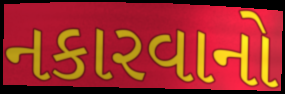
નકારવાનો